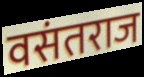
वसंतराज